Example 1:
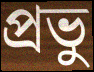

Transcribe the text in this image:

প্ৰভু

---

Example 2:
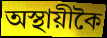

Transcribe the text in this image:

অস্থায়ীকৈ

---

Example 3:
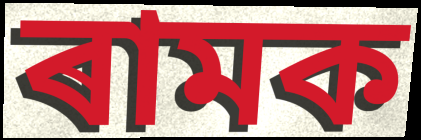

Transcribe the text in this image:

ৰামক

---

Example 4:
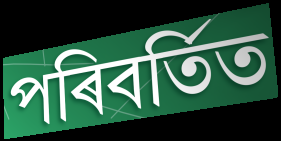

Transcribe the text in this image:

পৰিবৰ্তিত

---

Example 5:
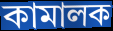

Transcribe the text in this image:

কামালক